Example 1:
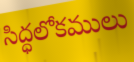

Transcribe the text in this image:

సిద్ధలోకములు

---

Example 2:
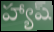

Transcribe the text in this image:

హ్యాష్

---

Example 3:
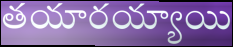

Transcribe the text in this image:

తయారయ్యాయి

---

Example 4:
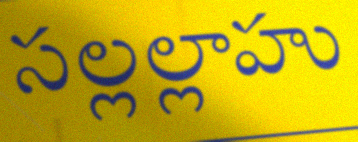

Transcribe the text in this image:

సల్లల్లాహు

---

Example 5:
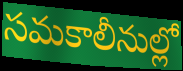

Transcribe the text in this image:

సమకాలీనుల్లో